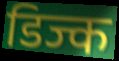
डिज्क